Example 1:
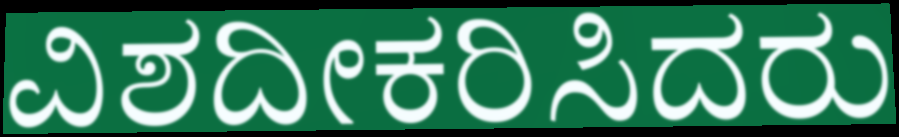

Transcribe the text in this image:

ವಿಶದೀಕರಿಸಿದರು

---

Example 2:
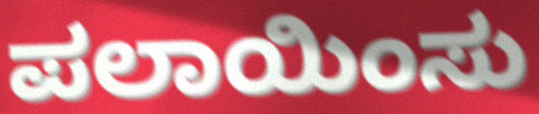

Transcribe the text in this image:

ಪಲಾಯಿಂಸು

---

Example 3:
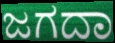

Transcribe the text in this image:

ಜಗದಾ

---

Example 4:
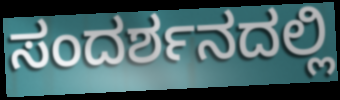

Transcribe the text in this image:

ಸಂದರ್ಶನದಲ್ಲಿ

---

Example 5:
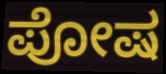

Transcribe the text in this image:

ಪೋಷ